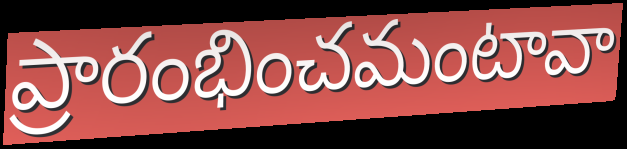
ప్రారంభించమంటావా